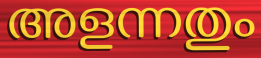
അളന്നതും